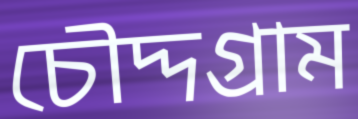
চৌদ্দগ্রাম